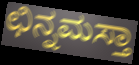
ಛಿನ್ನಮಸ್ತಾ